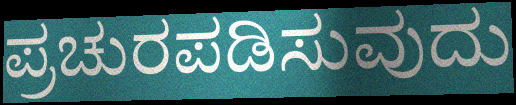
ಪ್ರಚುರಪಡಿಸುವುದು